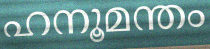
ഹനൂമന്തം